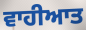
ਵਾਹੀਆਤ